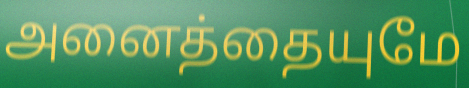
அனைத்தையுமே